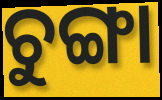
ଚୁଙ୍ଗା